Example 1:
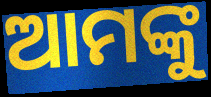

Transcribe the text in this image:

ଆମଙ୍କୁ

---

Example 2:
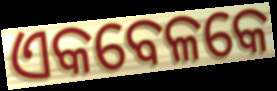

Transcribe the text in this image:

ଏକବେଳକେ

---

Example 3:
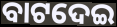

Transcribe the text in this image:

ବାଟଦେଇ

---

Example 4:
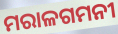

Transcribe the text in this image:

ମରାଳଗମନୀ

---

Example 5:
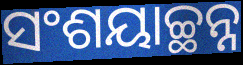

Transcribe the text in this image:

ସଂଶୟାଚ୍ଛନ୍ନ